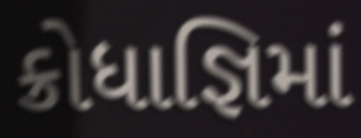
ક્રોધાજ્ઞિમાં